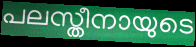
പലസ്തീനായുടെ